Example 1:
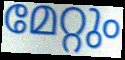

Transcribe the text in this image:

മേറ്റും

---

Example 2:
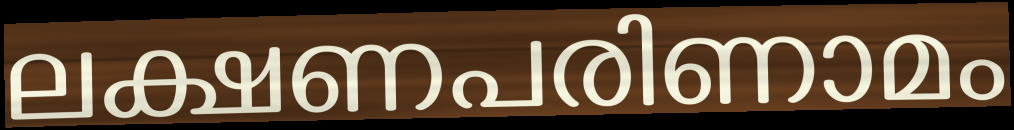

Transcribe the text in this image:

ലക്ഷണപരിണാമം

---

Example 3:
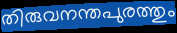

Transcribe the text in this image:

തിരുവനന്തപുരത്തും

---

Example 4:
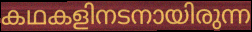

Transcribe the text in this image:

കഥകളിനടനായിരുന്ന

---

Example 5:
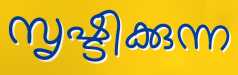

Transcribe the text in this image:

സൃഷ്ടിക്കുന്ന